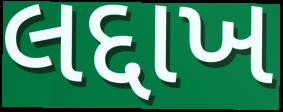
લદ્દાખ